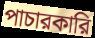
পাচারকারি